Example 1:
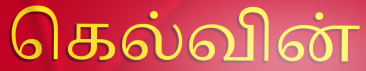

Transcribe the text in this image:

கெல்வின்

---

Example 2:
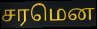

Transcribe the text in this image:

சரமென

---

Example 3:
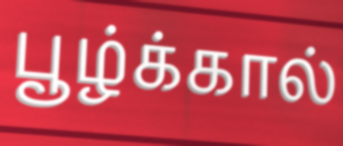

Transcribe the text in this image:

பூழ்க்கால்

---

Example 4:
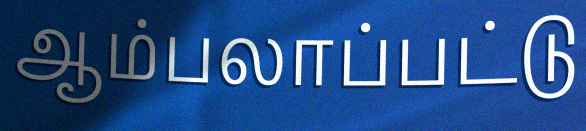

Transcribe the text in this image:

ஆம்பலாப்பட்டு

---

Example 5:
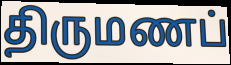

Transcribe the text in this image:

திருமணப்